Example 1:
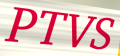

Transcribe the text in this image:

PTVS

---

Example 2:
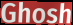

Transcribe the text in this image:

Ghosh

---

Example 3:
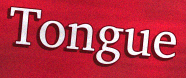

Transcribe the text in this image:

Tongue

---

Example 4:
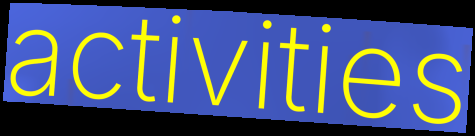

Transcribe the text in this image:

activities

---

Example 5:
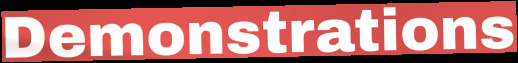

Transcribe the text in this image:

Demonstrations